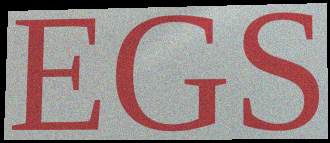
EGS